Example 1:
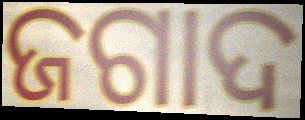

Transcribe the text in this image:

ଜଗାଦ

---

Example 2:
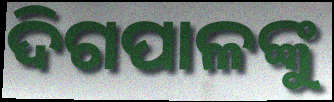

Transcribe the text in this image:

ଦିଗପାଳଙ୍କୁ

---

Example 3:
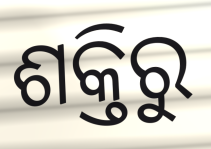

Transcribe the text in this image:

ଶକ୍ତିରୁ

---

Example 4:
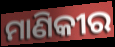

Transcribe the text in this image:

ମାଣିକୀର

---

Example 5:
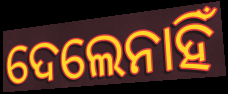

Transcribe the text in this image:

ଦେଲେନାହିଁ